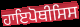
ਹਾਇਪੋਥੀਸਿਸ